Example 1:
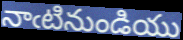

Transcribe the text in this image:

నాఁటినుండియు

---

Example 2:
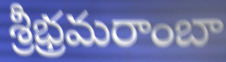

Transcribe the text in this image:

శ్రీభ్రమరాంబా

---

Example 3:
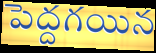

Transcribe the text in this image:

పెద్దగయిన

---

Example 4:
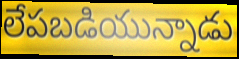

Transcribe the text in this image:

లేపబడియున్నాడు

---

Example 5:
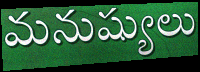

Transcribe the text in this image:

మనుష్యులు